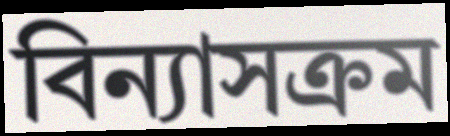
বিন্যাসক্রম